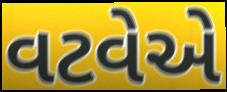
વટવેએ